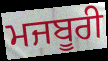
ਮਜਬੂਰੀ